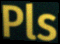
Pls